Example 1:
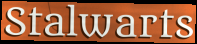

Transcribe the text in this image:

Stalwarts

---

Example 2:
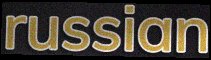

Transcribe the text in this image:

russian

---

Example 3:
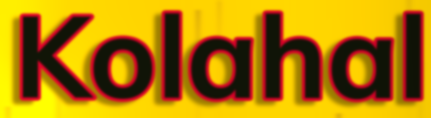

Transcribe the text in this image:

Kolahal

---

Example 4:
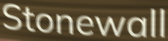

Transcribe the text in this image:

Stonewall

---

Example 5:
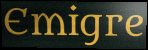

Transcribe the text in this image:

Emigre